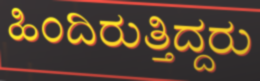
ಹಿಂದಿರುತ್ತಿದ್ದರು